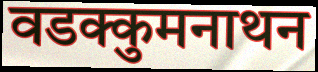
वडक्कुमनाथन